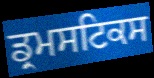
ਡ੍ਰਮਸਟਿਕਸ